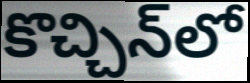
కొచ్చిన్‌లో